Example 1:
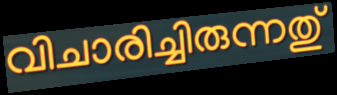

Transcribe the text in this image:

വിചാരിച്ചിരുന്നതു്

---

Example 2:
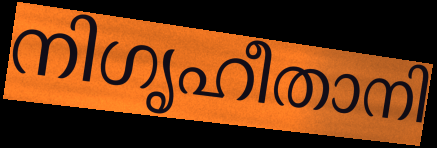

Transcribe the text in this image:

നിഗൃഹീതാനി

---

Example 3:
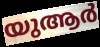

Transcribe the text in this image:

യുആർ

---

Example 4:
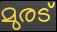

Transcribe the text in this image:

മുരട്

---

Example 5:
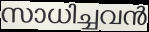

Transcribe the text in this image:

സാധിച്ചവൻ